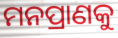
ମନପ୍ରାଣକୁ